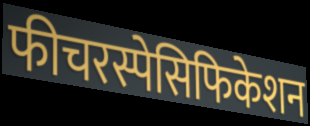
फीचरस्पेसिफिकेशन